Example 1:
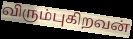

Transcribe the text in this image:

விரும்புகிறவன்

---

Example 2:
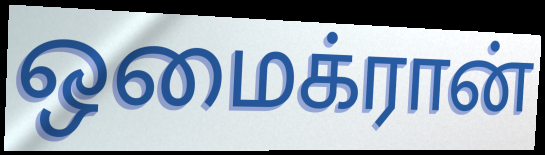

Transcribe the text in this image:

ஒமைக்ரான்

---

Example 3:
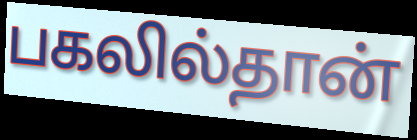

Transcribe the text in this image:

பகலில்தான்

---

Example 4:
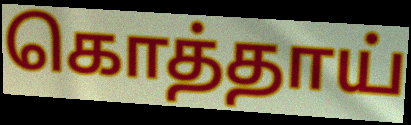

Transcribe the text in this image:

கொத்தாய்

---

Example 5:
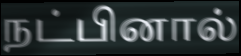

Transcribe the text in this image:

நட்பினால்